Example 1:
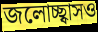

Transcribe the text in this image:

জলোচ্ছ্বাসও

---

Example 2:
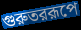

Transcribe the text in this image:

গুরুতররূপে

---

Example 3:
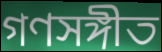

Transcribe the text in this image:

গণসঙ্গীত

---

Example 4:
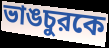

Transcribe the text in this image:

ভাঙচুরকে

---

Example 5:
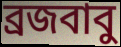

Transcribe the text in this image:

ব্রজবাবু